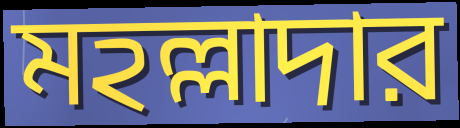
মহল্লাদার